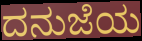
ದನುಜೆಯ